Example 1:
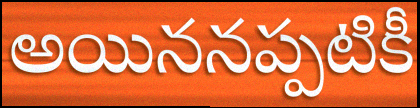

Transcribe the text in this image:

అయిననప్పటికీ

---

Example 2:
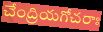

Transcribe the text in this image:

చేంద్రియగోచరాః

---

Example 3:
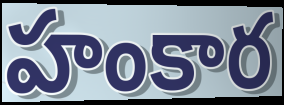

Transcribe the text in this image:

హంకార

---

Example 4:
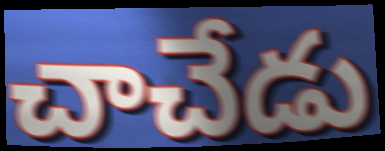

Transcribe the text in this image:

చాచేడు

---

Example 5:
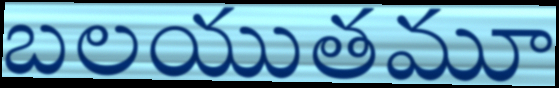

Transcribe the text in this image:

బలయుతమూ